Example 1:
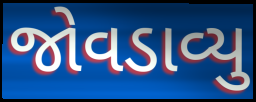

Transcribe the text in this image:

જોવડાવ્યુ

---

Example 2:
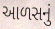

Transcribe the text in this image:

આળસનું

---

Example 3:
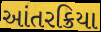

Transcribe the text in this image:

આંતરક્રિયા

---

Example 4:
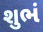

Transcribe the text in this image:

શુભં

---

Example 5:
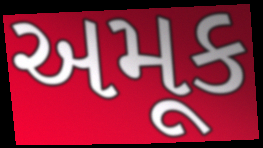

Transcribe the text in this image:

અમૂક